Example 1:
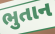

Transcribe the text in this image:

ભુતાન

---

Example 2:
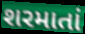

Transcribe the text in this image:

શરમાતાં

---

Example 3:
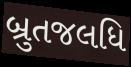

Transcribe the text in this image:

બ્રુતજલધિ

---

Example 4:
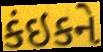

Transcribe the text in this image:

કંઇકને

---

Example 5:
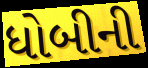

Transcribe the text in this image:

ધોબીની